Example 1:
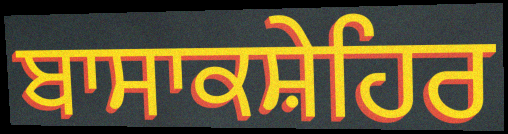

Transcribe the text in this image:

ਬਾਸਾਕਸ਼ੇਹਿਰ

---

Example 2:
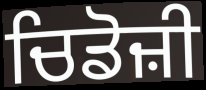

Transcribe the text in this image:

ਚਿਡੋਜ਼ੀ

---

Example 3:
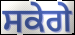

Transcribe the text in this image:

ਸਕੇਗੇ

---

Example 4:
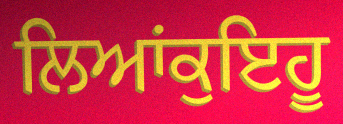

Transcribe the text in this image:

ਲਿਆਂਕੁਇਹੂ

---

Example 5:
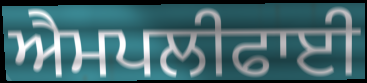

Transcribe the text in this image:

ਐਮਪਲੀਫਾਈ